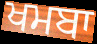
ਖਮਬਾ